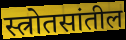
स्त्रोतसांतील